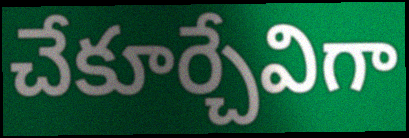
చేకూర్చేవిగా